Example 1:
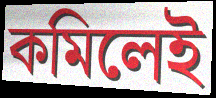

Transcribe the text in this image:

কমিলেই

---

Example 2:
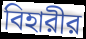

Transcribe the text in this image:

বিহারীর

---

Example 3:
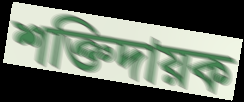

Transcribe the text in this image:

শক্তিদায়ক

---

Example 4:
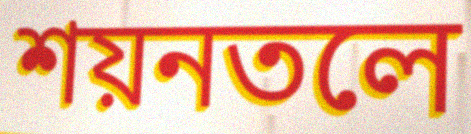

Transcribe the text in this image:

শয়নতলে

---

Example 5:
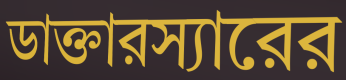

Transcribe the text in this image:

ডাক্তারস্যারের